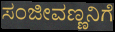
ಸಂಜೀವಣ್ಣನಿಗೆ